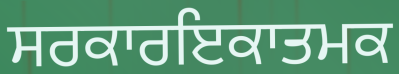
ਸਰਕਾਰਇਕਾਤਮਕ